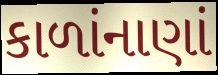
કાળાંનાણાં